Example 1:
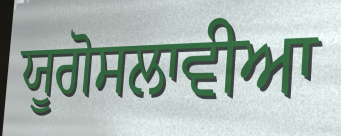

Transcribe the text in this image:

ਯੂਗੋਸਲਾਵੀਆ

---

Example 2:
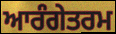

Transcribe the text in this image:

ਆਰੰਗੇਤਰਮ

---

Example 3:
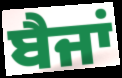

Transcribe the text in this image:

ਬੈਜਾਂ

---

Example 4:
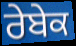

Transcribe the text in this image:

ਰੇਬੇਕ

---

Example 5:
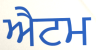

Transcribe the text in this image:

ਐਟਮ